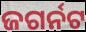
ଜଗର୍ନଟ